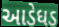
આડેધડ